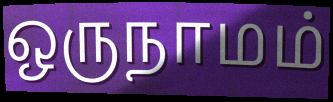
ஒருநாமம்